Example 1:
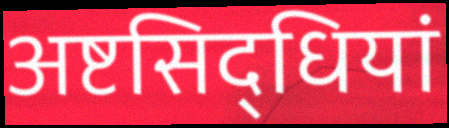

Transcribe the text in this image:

अष्टसिद्धियां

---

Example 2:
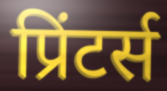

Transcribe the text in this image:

प्रिंटर्स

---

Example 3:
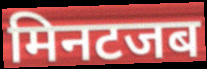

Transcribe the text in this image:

मिनटजब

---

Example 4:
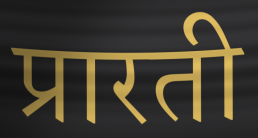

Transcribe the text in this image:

प्रारती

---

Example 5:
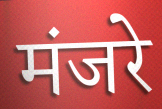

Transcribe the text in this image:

मंजरे